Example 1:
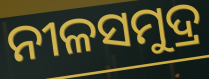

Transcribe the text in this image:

ନୀଳସମୁଦ୍ର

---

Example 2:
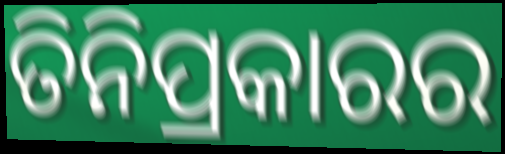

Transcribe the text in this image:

ତିନିପ୍ରକାରର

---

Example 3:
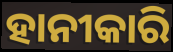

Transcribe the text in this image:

ହାନୀକାରି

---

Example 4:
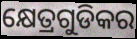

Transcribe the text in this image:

କ୍ଷେତ୍ରଗୁଡିକର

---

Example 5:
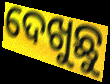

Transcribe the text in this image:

ଦେଖୁଛୁ